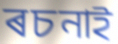
ৰচনাই